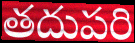
తదుపరి